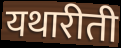
यथारीती